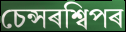
চেন্সৰশ্বিপৰ